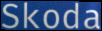
Skoda